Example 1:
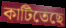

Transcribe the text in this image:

কাটিতেছে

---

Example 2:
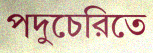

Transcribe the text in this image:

পদুচেরিতে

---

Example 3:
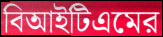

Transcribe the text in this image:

বিআইটিএমের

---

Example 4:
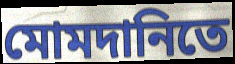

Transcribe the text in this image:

মোমদানিতে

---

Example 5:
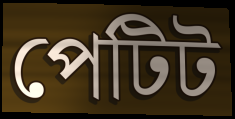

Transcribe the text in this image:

পেটিট